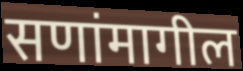
सणांमागील